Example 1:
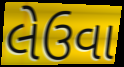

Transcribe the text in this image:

લેઉવા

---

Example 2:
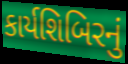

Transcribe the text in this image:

કાર્યશિબિરનું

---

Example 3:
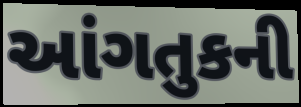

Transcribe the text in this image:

આંગતુકની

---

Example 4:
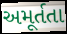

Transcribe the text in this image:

અમૂર્તતા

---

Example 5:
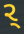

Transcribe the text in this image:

ર્